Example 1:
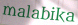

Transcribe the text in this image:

malabika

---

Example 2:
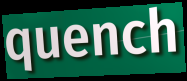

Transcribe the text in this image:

quench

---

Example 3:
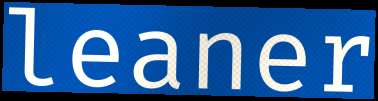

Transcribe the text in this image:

leaner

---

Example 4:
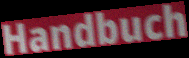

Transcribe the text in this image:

Handbuch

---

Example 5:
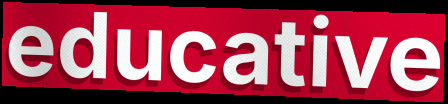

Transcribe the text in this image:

educative